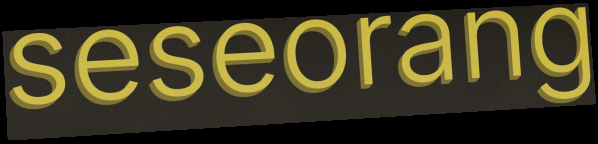
seseorang